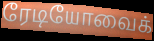
ரேடியோவைக்